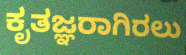
ಕೃತಜ್ಞರಾಗಿರಲು